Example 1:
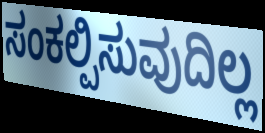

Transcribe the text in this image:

ಸಂಕಲ್ಪಿಸುವುದಿಲ್ಲ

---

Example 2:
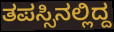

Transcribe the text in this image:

ತಪಸ್ಸಿನಲ್ಲಿದ್ದ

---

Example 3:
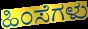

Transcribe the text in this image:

ಹಿಂಸೆಗಳು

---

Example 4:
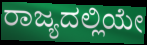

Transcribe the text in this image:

ರಾಜ್ಯದಲ್ಲಿಯೇ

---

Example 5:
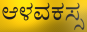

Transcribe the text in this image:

ಆಳವಕಸ್ಸ